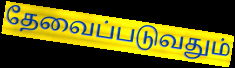
தேவைப்படுவதும்